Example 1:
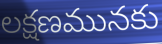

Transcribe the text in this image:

లక్షణమునకు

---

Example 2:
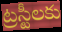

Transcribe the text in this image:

ట్రస్టీలకు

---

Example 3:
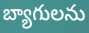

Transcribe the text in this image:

బ్యాగులను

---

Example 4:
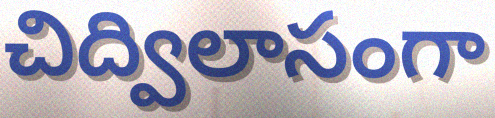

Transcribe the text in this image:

చిద్విలాసంగా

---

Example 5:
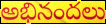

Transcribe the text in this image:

అభినందలు